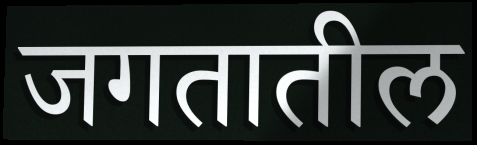
जगतातील